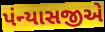
પંન્યાસજીએ